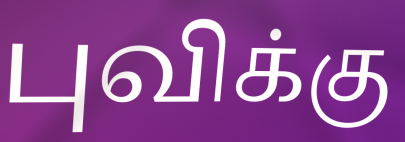
புவிக்கு